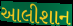
આલીશાન